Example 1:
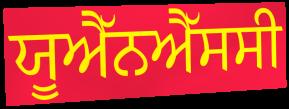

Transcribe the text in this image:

ਯੂਐੱਨਐੱਸਸੀ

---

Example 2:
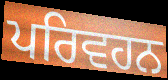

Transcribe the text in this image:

ਪਰਿਵਹਨ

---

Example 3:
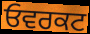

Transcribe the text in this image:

ਓਵਰਕਟ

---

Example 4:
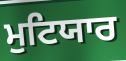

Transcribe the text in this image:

ਮੁਟਿਯਾਰ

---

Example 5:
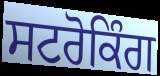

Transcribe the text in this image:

ਸਟਰੋਕਿੰਗ